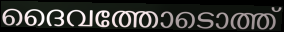
ദൈവത്തോടൊത്ത്